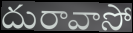
దురావాసో